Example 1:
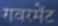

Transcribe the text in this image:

गवरमेंट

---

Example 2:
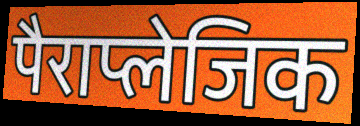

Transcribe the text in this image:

पैराप्लेजिक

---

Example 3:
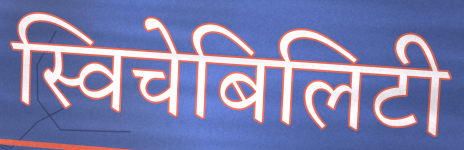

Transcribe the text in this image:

स्विचेबिलिटी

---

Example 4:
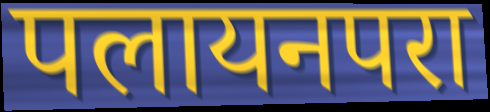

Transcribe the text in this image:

पलायनपरा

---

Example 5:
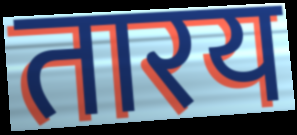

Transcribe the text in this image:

तारय